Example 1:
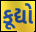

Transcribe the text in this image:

કૂદ્યો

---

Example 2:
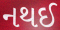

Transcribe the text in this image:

નથઈ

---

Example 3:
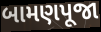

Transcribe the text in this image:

બામણપૂજા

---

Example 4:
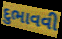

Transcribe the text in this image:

દુભાવવી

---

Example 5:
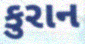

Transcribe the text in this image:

કુરાન